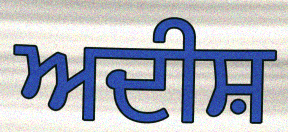
ਅਦੀਸ਼